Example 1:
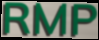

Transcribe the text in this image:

RMP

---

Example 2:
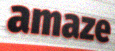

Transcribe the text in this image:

amaze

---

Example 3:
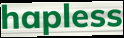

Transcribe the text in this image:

hapless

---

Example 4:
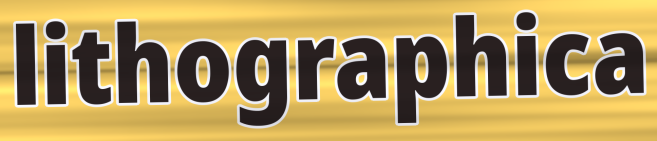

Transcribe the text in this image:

lithographica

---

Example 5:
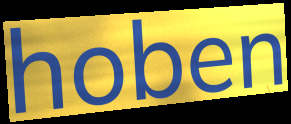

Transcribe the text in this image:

hoben